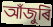
আঁজুৰি